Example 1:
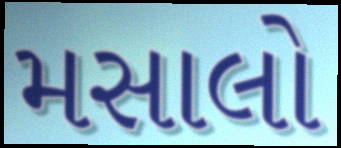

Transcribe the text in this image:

મસાલો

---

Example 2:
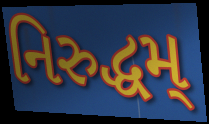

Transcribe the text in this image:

નિરુદ્ધમ્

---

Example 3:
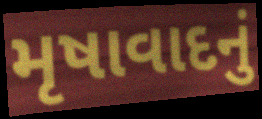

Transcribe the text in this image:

મૃષાવાદનું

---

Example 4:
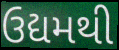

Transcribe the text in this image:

ઉદ્યમથી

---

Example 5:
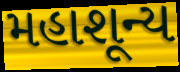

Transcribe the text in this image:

મહાશૂન્ય